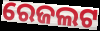
ରେଜଲଟ